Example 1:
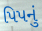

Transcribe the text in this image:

પિપનું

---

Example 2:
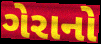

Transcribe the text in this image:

ગેરાનો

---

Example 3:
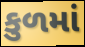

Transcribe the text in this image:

કુળમાં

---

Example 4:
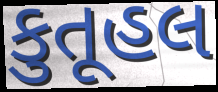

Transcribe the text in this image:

કુતૂહલ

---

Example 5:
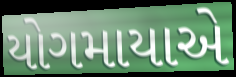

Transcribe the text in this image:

યોગમાયાએ